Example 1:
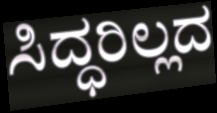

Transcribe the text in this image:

ಸಿದ್ಧರಿಲ್ಲದ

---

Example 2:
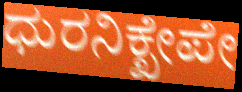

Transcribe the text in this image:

ಧುರನಿಕ್ಖೇಪೇ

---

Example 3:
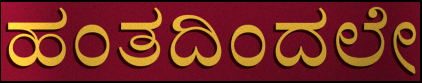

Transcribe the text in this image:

ಹಂತದಿಂದಲೇ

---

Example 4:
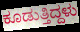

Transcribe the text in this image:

ಕೂಡುತ್ತಿದ್ದಳು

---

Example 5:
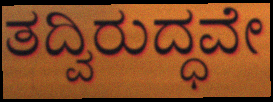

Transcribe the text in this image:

ತದ್ವಿರುದ್ಧವೇ